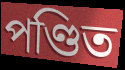
পণ্ডিত